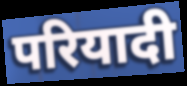
परियादी